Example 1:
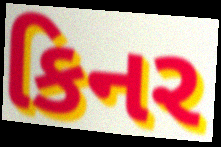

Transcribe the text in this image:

કિનર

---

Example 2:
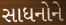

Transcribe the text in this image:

સાધનોને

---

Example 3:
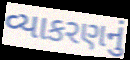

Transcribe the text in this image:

વ્યાકરણનું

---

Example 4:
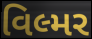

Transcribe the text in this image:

વિલ્મર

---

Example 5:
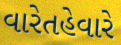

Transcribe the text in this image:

વારેતહેવારે